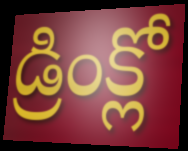
డ్రింక్లో